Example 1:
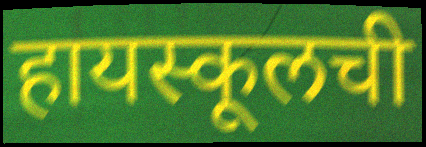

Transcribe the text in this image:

हायस्कूलची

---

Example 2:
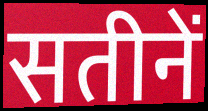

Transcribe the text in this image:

सतीनें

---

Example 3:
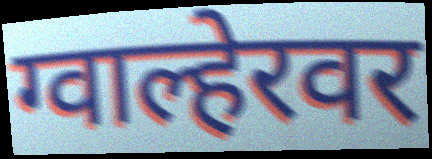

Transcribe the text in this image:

ग्वाल्हेरवर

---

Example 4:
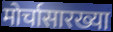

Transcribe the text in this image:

मोर्चासारख्या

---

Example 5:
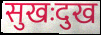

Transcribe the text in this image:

सुखःदुख